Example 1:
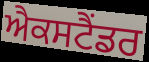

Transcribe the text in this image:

ਐਕਸਟੈਂਡਰ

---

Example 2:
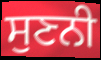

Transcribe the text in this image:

ਸੁਣਨੀ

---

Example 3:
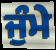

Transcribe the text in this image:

ਜੁੰਮੇ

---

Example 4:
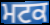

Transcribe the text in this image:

ਮਟਕ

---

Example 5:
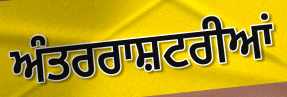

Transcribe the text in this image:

ਅੰਤਰਰਾਸ਼ਟਰੀਆਂ